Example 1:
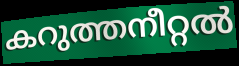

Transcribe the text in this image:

കറുത്തനീറ്റൽ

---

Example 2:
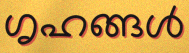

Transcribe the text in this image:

ഗൃഹങ്ങൾ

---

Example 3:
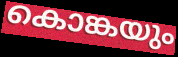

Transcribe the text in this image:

കൊങ്കയും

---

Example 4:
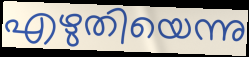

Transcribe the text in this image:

എഴുതിയെന്നു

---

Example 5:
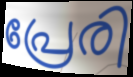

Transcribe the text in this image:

പ്രേരി